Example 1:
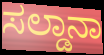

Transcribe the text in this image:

ಸಲ್ಡಾನಾ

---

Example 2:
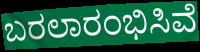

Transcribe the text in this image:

ಬರಲಾರಂಭಿಸಿವೆ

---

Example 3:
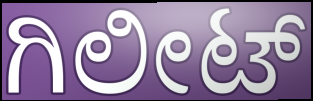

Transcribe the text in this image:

ಗಿಲೀಟ್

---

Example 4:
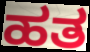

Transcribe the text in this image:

ಹತ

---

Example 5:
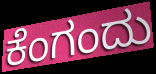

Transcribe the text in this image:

ಕೆಂಗಂದು